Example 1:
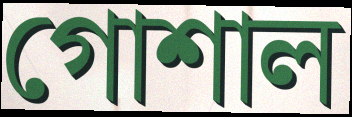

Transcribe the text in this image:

গোশাল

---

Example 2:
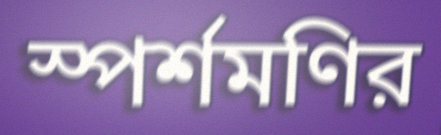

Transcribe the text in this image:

স্পর্শমণির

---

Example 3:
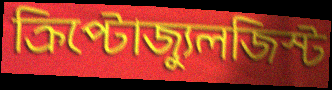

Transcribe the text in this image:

ক্রিপ্টোজ্যুলজিস্ট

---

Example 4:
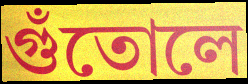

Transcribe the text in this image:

গুঁতোলে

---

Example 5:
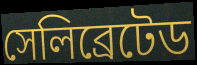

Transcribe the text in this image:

সেলিব্রেটেড